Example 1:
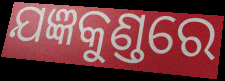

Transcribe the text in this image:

ଯଜ୍ଞକୁଣ୍ଡରେ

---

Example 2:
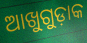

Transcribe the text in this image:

ଆଖୁଗୁଡ଼ାକ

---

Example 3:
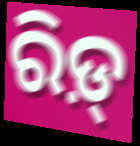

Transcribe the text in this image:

ରିଡ଼୍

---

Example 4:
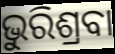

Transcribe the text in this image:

ଭୁରିଶ୍ରବା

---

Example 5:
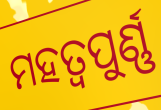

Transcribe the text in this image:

ମହତ୍ୱପୁର୍ଣ୍ଣ